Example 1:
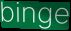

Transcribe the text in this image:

binge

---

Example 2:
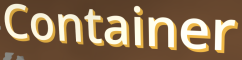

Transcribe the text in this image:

Container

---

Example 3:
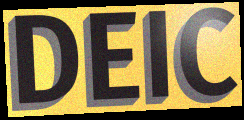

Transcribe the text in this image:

DEIC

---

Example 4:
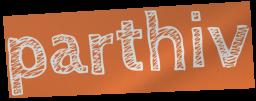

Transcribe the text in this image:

parthiv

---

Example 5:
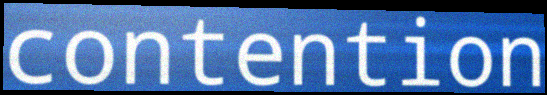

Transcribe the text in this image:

contention